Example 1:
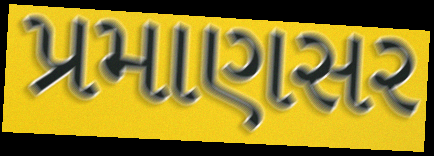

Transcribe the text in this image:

પ્રમાણસર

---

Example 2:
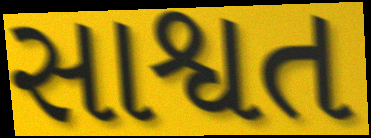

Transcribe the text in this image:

સાશ્વત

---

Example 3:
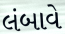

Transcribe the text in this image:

લંબાવે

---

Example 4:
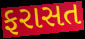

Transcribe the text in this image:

ફરાસત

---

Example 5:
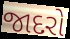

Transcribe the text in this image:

જાદરો